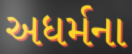
અધર્મના